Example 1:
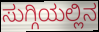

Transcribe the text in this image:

ಸುಗ್ಗಿಯಲ್ಲಿನ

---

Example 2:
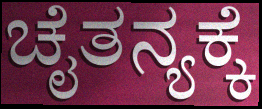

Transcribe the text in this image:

ಚೈತನ್ಯಕ್ಕೆ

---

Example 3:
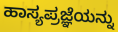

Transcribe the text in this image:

ಹಾಸ್ಯಪ್ರಜ್ಞೆಯನ್ನು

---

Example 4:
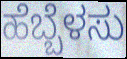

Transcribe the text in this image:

ಹೆಬ್ಬೆಳಸು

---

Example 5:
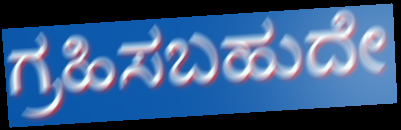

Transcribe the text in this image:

ಗ್ರಹಿಸಬಹುದೇ